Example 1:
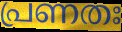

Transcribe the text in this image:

പ്രണതഃ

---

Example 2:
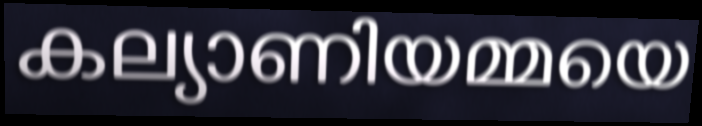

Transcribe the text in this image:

കല്യാണിയമ്മയെ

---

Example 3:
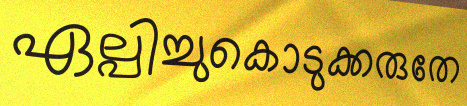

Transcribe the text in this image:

ഏല്പിച്ചുകൊടുക്കരുതേ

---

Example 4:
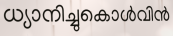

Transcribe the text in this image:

ധ്യാനിച്ചുകൊൾവിൻ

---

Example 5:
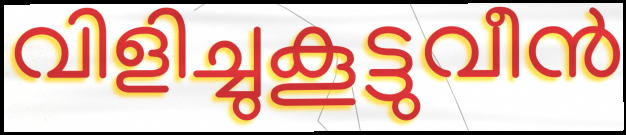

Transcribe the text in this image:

വിളിച്ചുകൂട്ടുവീൻ